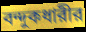
বন্দুকধারীর